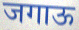
जगाऊ